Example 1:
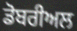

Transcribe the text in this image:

ਡੋਬਰੀਅਲ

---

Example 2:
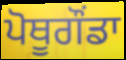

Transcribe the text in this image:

ਪੋਥੂਗੌਂਡਾ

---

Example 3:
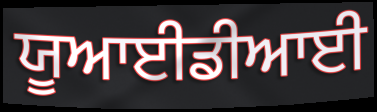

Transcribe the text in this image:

ਯੂਆਈਡੀਆਈ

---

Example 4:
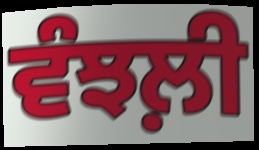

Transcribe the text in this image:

ਵੰਝਲ਼ੀ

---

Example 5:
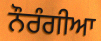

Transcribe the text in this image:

ਨੌਰੰਗੀਆ